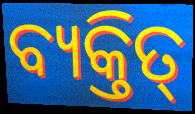
ବ୍ୟକ୍ତିତ୍